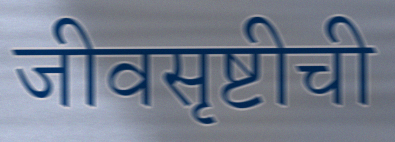
जीवसृष्टीची